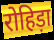
रोहिड़ा